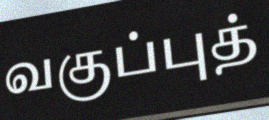
வகுப்புத்